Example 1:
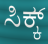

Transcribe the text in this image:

ಸಿಕ್ಕ್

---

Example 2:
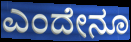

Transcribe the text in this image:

ಎಂದೇನೂ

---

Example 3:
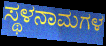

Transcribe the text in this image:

ಸ್ಥಳನಾಮಗಳ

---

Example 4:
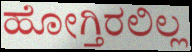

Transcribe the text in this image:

ಹೋಗ್ತಿರಲಿಲ್ಲ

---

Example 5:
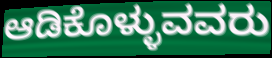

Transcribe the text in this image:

ಆಡಿಕೊಳ್ಳುವವರು